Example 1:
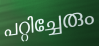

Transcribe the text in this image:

പറ്റിച്ചേരും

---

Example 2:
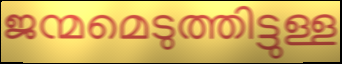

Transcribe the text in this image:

ജന്മമെടുത്തിട്ടുള്ള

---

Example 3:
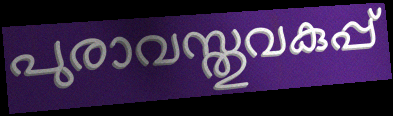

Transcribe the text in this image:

പുരാവസ്തുവകുപ്പ്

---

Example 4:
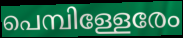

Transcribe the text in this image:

പെമ്പിള്ളേരേം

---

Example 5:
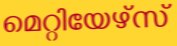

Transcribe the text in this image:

മെറ്റിയേഴ്സ്